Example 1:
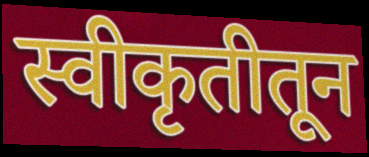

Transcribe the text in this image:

स्वीकृतीतून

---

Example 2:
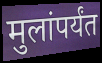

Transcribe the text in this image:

मुलांपर्यंत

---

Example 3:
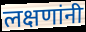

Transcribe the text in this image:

लक्षणांनी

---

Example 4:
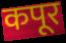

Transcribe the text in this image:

कपूर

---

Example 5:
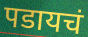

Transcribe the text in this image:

पडायचं